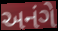
અનંગે